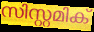
സിസ്റ്റമിക്